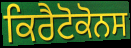
ਕਿਰੈਟੋਕੋਨਸ